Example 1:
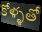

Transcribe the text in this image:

కోళ్ళతో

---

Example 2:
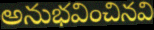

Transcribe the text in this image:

అనుభవించినవి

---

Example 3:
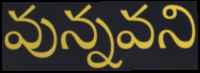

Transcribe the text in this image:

వున్నవని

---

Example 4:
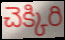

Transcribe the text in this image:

చెక్కిరి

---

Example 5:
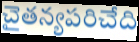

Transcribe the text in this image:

చైతన్యపరిచేది